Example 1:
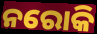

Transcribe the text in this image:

ନରୋକି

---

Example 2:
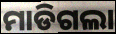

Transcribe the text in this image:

ମାଡିଗଲା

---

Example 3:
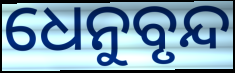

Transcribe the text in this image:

ଧେନୁବୃନ୍ଦ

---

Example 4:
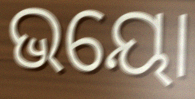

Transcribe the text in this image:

ଭୟୋ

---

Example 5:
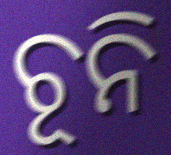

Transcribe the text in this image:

ଚୂନି